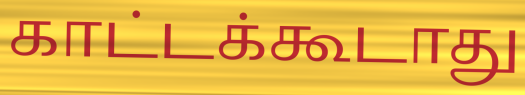
காட்டக்கூடாது